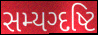
સમ્યગ્દષ્ટિ